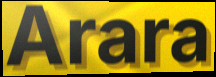
Arara